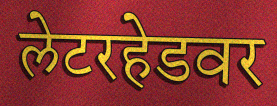
लेटरहेडवर